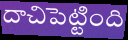
దాచిపెట్టింది